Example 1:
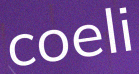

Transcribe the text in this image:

coeli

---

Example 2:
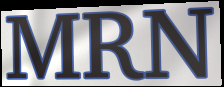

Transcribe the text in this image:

MRN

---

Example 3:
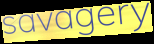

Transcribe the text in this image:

savagery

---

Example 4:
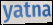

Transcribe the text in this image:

yatna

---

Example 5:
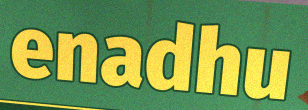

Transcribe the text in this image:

enadhu